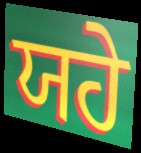
ਯਹੇ